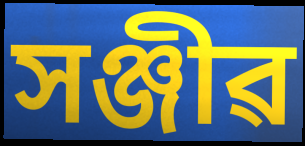
সঞ্জীৱ